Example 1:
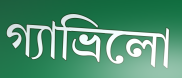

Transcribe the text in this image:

গ্যাভ্রিলো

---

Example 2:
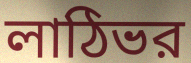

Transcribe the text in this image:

লাঠিভর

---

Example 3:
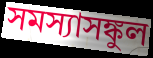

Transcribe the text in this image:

সমস্যাসঙ্কুল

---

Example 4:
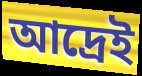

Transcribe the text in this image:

আদ্রেই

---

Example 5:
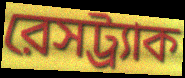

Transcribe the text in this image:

রেসট্র্যাক